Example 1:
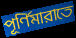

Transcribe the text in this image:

পূর্ণিমারাতে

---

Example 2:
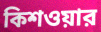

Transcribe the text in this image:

কিশওয়ার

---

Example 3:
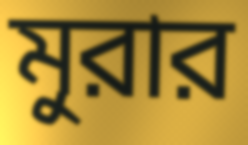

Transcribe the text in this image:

মুরার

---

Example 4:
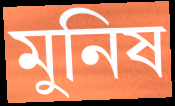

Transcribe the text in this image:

মুনিষ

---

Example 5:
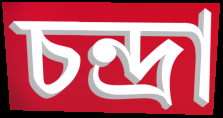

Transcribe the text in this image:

চন্দ্রা